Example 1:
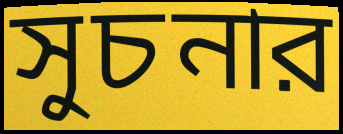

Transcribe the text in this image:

সুচনার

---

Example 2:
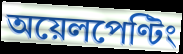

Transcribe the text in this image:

অয়েলপেণ্টিং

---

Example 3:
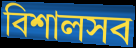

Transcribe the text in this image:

বিশালসব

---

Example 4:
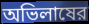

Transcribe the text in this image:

অভিলাষের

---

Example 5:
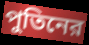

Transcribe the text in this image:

পুতিনের